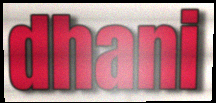
dhani